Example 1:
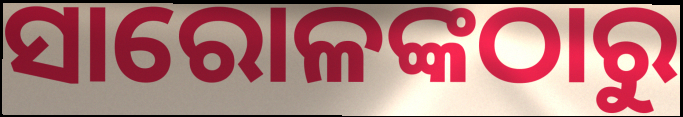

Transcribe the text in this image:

ସାରୋଳଙ୍କଠାରୁ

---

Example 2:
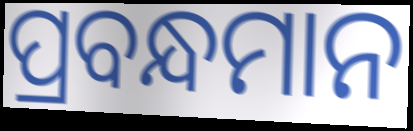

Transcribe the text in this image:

ପ୍ରବନ୍ଧମାନ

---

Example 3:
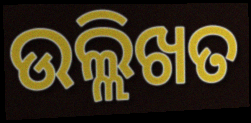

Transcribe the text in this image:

ଉଲ୍ଲିଖତ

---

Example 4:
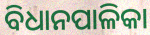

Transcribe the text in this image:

ବିଧାନପାଳିକା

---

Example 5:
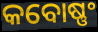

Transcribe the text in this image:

କବୋଷ୍ଣଂ